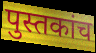
पुस्तकांच